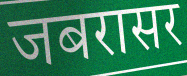
जबरासर